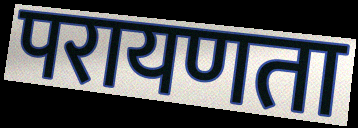
परायणता